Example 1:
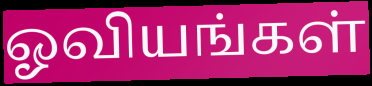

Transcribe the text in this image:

ஓவியங்கள்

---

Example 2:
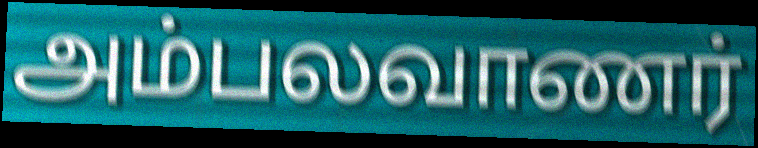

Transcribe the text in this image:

அம்பலவாணர்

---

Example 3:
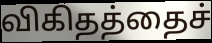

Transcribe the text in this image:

விகிதத்தைச்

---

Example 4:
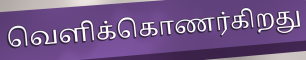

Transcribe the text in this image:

வெளிக்கொணர்கிறது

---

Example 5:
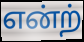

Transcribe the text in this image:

என்ற்